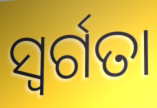
ସ୍ବର୍ଗତା